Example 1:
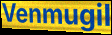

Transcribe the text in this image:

Venmugil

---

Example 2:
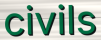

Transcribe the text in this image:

civils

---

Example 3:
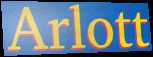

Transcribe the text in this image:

Arlott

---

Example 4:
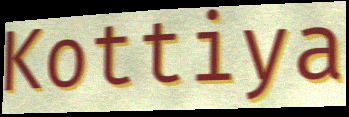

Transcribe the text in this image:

Kottiya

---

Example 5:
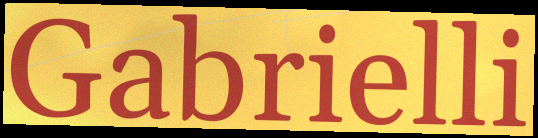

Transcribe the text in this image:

Gabrielli